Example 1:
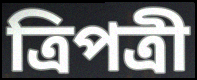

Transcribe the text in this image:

ত্রিপত্রী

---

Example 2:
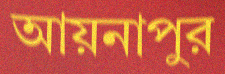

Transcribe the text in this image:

আয়নাপুর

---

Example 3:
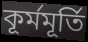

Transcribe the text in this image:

কূর্মমূর্তি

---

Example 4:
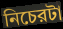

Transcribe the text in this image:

নিচেরটা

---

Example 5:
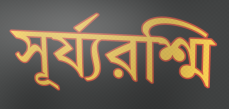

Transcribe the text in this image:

সূর্য্যরশ্মি